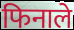
फिनाले